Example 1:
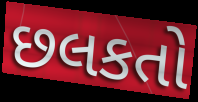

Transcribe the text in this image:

છલકતો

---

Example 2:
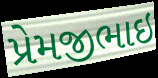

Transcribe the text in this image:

પ્રેમજીભાઇ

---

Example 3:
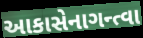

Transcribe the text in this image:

આકાસેનાગન્ત્વા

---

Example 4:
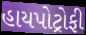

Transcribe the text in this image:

હાયપોટ્રોફી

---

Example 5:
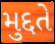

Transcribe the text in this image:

મુદ્દતે